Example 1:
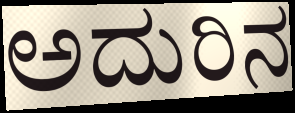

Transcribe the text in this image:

ಅದುರಿನ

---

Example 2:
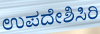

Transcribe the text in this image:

ಉಪದೇಶಿಸಿರಿ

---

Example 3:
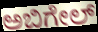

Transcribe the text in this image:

ಅಬಿಗೇಲ್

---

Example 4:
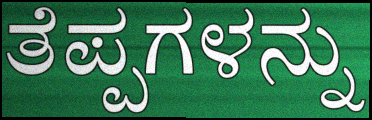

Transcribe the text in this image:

ತೆಪ್ಪಗಳನ್ನು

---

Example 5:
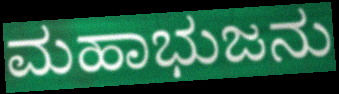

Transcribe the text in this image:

ಮಹಾಭುಜನು